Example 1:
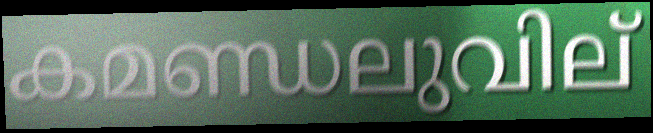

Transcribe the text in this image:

കമണ്ഡലുവില്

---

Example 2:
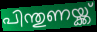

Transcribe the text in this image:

പിന്തുണയ്ക്ക്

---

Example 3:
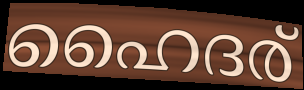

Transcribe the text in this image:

ഹൈദര്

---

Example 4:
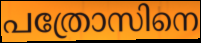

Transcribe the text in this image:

പത്രോസിനെ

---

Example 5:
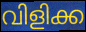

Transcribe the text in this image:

വിളിക്ക